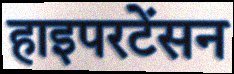
हाइपरटेंसन